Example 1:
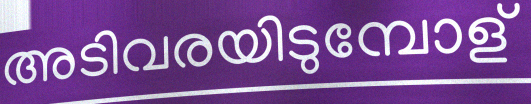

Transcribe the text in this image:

അടിവരയിടുമ്പോള്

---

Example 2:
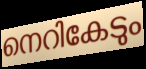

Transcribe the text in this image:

നെറികേടും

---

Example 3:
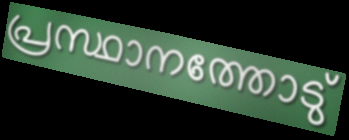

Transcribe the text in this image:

പ്രസ്ഥാനത്തോടു്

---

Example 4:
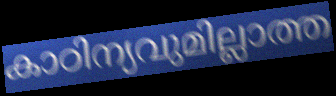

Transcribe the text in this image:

കാഠിന്യവുമില്ലാത്ത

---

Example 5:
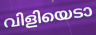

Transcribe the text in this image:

വിളിയെടാ